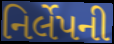
નિર્લેપની